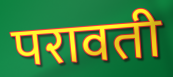
परावती